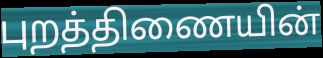
புறத்திணையின்